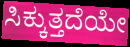
ಸಿಕ್ಕುತ್ತದೆಯೇ